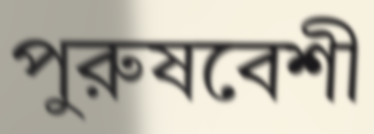
পুরুষবেশী